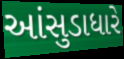
આંસુડાધારે